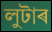
লুটাৰ